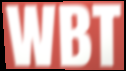
WBT